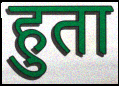
हुता